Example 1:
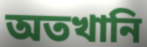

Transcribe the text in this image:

অতখানি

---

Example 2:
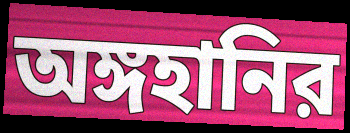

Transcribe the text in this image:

অঙ্গহানির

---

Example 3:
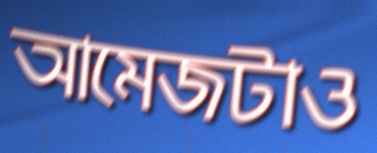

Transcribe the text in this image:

আমেজটাও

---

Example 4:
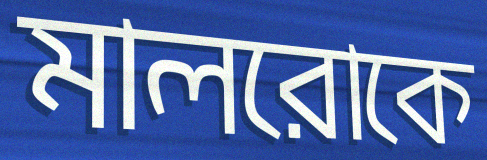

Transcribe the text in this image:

মালরোকে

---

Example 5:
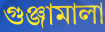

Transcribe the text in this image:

গুঞ্জামালা